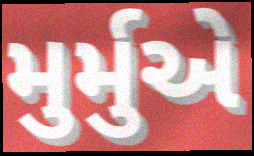
મુર્મુએ